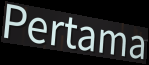
Pertama